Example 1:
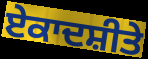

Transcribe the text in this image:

ਏਕਾਦਸ਼ੀਤੇ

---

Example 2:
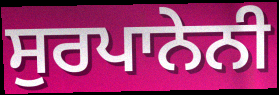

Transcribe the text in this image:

ਸੁਰਪਾਨੇਨੀ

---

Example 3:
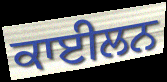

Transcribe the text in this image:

ਕਾਈਲਨ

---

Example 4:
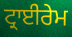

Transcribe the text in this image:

ਟ੍ਰਾਈਰੇਮ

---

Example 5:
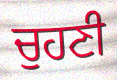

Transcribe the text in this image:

ਚੁਹਣੀ